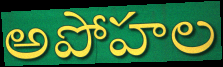
అపోహల